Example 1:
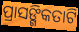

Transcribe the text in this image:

ପ୍ରାସଙ୍ଗିକତାଟି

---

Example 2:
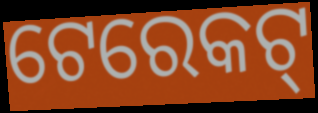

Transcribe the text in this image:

ଟେରେକଟ୍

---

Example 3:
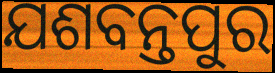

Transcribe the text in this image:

ଯଶବନ୍ତପୁର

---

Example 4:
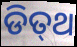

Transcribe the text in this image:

ଡିତ୍‍ଥ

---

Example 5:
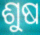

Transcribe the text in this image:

ଶୁଷ